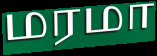
மரமா